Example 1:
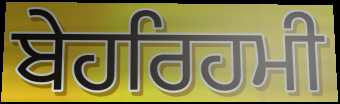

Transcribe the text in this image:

ਬੇਹਰਿਹਮੀ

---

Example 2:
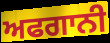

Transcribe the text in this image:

ਅਫਗਾਨੀ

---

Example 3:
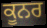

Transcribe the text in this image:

ਕੂਨਰ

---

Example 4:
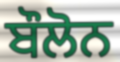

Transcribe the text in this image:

ਬੌਲੋਨ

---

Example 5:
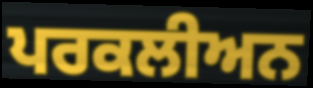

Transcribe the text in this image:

ਪਰਕਲੀਅਨ